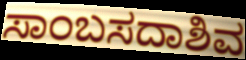
ಸಾಂಬಸದಾಶಿವ